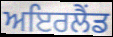
ਅਇਰਲੈਂਡ